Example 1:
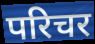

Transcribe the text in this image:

परिचर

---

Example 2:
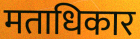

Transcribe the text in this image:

मताधिकार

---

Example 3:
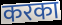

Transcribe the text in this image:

करका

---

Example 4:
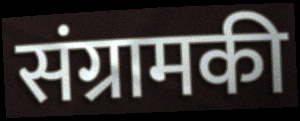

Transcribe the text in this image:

संग्रामकी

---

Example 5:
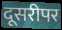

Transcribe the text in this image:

दूसरीपर